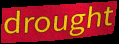
drought